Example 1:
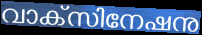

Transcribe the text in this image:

വാക്‌സിനേഷനു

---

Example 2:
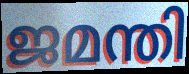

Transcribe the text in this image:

ജമന്തി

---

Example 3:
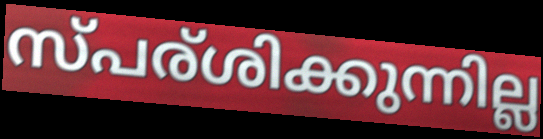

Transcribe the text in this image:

സ്പര്ശിക്കുന്നില്ല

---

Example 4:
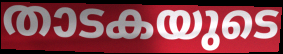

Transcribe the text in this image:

താടകയുടെ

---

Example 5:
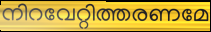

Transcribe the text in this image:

നിറവേറ്റിത്തരണമേ